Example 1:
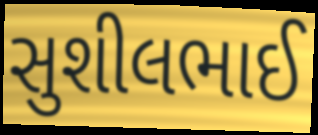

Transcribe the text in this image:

સુશીલભાઈ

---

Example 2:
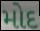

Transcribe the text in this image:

મોદ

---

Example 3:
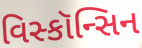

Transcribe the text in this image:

વિસ્કૉન્સિન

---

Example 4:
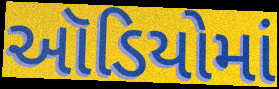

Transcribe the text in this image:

ઑડિયોમાં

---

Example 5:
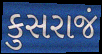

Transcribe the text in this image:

કુસરાજં